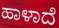
ಹಾಳಾದೆ